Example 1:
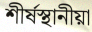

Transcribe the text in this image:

শীর্ষস্থানীয়া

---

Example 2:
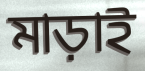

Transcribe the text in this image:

মাড়াই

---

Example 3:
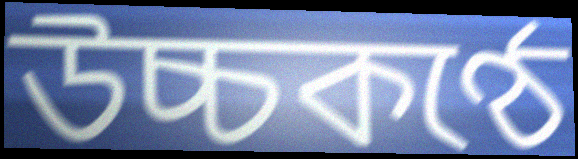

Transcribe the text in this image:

উচ্চকণ্ঠে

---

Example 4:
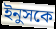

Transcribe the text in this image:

ইনুসকে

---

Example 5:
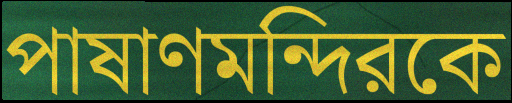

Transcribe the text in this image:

পাষাণমন্দিরকে